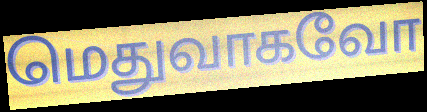
மெதுவாகவோ